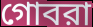
গোবরা